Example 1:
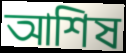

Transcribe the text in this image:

আশিষ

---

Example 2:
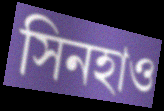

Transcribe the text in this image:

সিনহাও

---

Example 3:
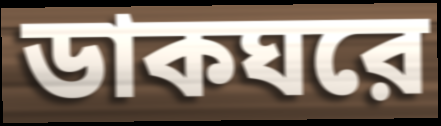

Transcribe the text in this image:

ডাকঘরে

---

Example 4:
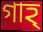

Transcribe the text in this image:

গাহ্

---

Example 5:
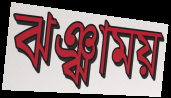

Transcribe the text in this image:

ঝঞ্ঝাময়